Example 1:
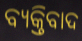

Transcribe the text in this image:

ବ୍ୟକ୍ତିବାଦ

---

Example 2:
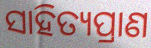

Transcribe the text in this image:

ସାହିତ୍ୟପ୍ରାଣ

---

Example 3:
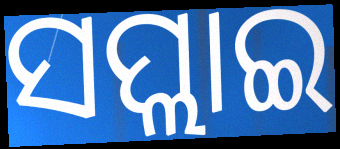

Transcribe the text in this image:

ସପ୍ଲାଇ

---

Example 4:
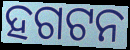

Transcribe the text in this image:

ହଗଟନ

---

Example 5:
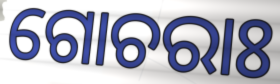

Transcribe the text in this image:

ଗୋଚରାଃ